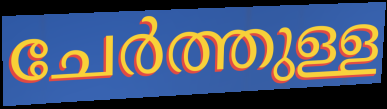
ചേർത്തുള്ള